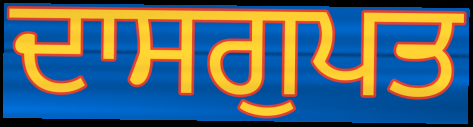
ਦਾਸਗੁਪਤ